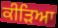
ਕੀੜਿਆ